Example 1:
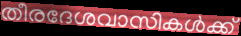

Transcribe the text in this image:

തീരദേശവാസികൾക്ക്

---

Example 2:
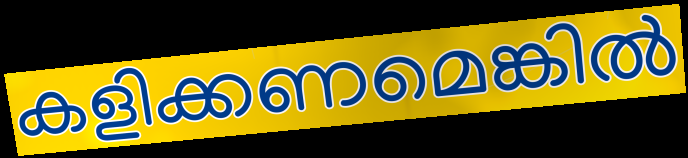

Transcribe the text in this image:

കളിക്കണമെങ്കിൽ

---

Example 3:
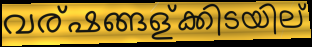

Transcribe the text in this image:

വര്ഷങ്ങള്ക്കിടയില്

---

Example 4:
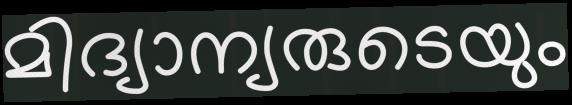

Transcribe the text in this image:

മിദ്യാന്യരുടെയും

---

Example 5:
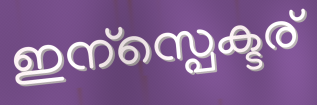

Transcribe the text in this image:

ഇന്സ്പെക്ടര്